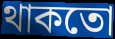
থাকতো